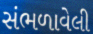
સંભળાવેલી